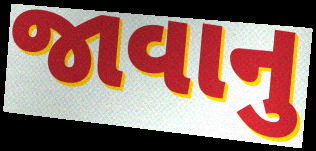
જાવાનુ